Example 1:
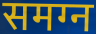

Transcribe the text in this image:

समग्न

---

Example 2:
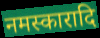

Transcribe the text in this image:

नमस्कारादि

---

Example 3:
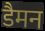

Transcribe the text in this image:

डैमन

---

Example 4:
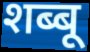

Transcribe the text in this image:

शब्बू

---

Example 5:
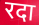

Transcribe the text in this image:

रदा